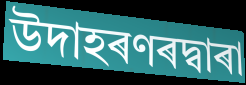
উদাহৰণৰদ্বাৰা